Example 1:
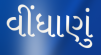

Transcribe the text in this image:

વીંધાણું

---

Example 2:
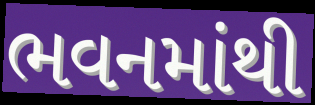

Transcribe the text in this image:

ભવનમાંથી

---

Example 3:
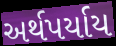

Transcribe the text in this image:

અર્થપર્યાય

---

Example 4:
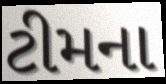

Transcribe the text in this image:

ટીમના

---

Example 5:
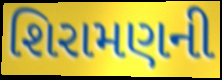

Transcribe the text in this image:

શિરામણની